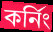
কর্নিং